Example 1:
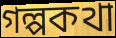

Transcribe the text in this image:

গল্পকথা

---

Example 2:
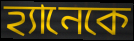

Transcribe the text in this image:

হ্যানেকে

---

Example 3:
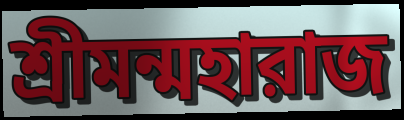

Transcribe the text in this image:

শ্রীমন্মহারাজ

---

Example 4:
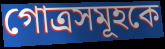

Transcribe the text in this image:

গোত্রসমূহকে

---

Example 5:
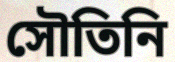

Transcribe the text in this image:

সৌতিনি